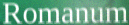
Romanum